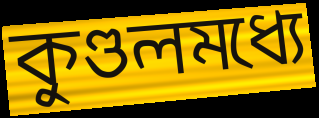
কুণ্ডলমধ্যে